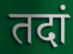
तदां